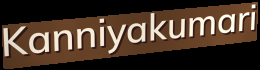
Kanniyakumari